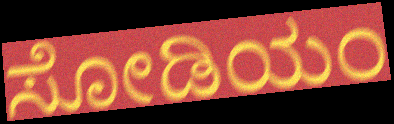
ಸೋಡಿಯಂ